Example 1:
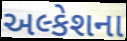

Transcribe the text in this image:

અલ્કેશના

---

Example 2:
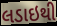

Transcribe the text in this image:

લડાઇથી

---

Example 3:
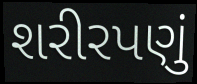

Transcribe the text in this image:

શરીરપણું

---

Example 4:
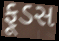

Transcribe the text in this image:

ફૂડસ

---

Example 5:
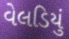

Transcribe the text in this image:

વેલડિયું